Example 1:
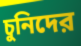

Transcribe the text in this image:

চুনিদের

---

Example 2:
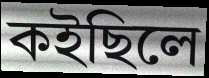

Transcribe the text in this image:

কইছিলে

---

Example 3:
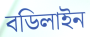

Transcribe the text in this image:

বডিলাইন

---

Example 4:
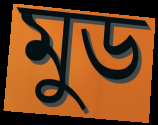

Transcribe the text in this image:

মুড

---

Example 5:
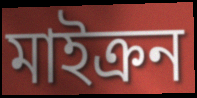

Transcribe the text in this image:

মাইক্রন